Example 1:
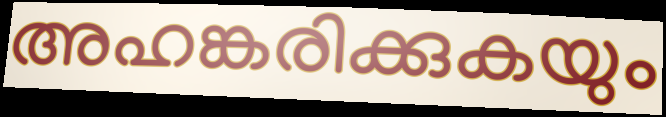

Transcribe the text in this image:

അഹങ്കരിക്കുകയും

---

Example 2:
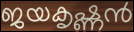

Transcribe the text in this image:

ജയകൃഷ്ണൻ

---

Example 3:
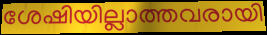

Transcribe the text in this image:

ശേഷിയില്ലാത്തവരായി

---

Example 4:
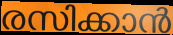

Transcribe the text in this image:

രസിക്കാൻ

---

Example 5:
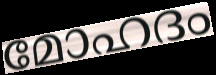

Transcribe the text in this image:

മോഹദം